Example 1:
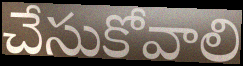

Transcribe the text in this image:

చేసుకోవాలి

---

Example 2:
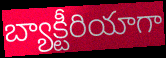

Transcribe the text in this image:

బ్యాక్టీరియాగా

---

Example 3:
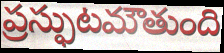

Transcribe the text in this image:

ప్రస్ఫుటమౌతుంది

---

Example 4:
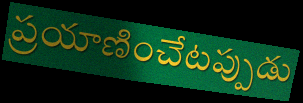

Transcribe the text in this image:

ప్రయాణించేటప్పుడు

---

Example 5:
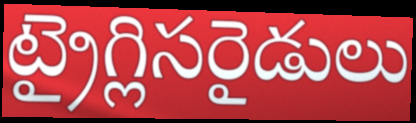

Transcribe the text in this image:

ట్రైగ్లిసరైడులు